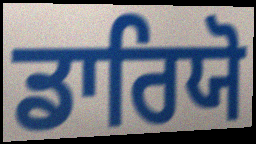
ਡਾਰਿਯੋ